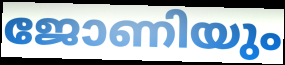
ജോണിയും